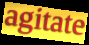
agitate